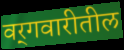
वर्गवारीतील